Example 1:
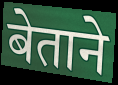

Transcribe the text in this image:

बेताने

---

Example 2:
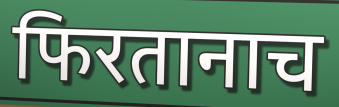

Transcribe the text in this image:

फिरतानाच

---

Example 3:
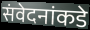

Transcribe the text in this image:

संवेदनांकडे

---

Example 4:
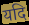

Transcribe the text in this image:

यदि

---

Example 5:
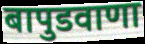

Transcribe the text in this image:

बापुडवाणा